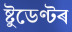
ষ্টুডেণ্টৰ